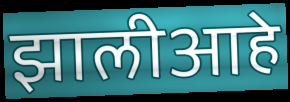
झालीआहे